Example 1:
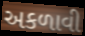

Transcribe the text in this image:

અકળાવી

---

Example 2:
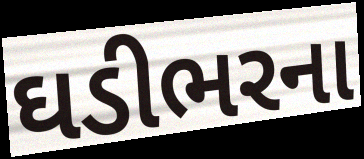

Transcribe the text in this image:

ઘડીભરના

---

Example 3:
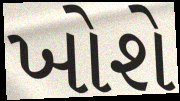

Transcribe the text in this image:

ખોશે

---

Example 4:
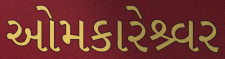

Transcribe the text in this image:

ઓમકારેશ્ર્વર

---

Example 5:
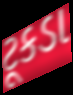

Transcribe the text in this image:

ટૂકડા